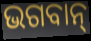
ଭଗବାନ୍